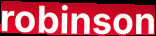
robinson